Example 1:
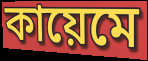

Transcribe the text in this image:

কায়েমে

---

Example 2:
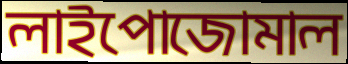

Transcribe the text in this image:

লাইপোজোমাল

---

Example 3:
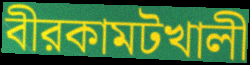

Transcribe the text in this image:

বীরকামটখালী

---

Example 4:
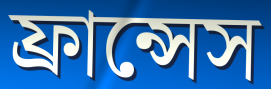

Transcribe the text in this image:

ফ্রান্সেস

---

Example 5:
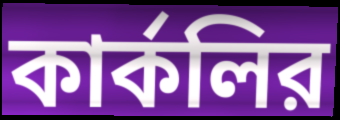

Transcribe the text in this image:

কার্কলির